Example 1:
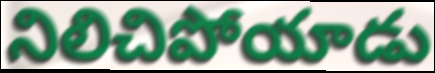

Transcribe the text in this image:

నిలిచిపోయాడు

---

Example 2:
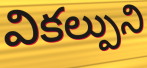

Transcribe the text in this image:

వికల్పుని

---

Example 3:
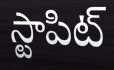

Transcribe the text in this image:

స్టాపిట్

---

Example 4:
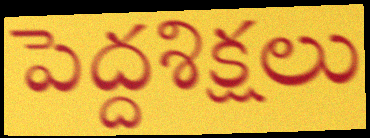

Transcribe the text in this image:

పెద్దశిక్షలు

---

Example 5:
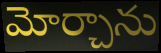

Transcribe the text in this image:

మోర్చాను